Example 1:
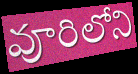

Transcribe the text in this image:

వూరిలోని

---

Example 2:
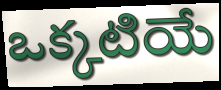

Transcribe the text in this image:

ఒక్కటియే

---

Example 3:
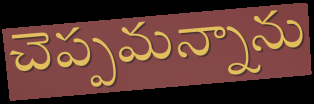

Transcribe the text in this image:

చెప్పమన్నాను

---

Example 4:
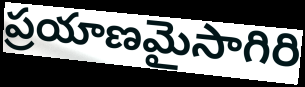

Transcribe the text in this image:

ప్రయాణమైసాగిరి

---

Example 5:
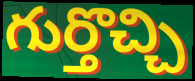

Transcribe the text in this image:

గుర్తొచ్చి